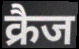
क्रैज